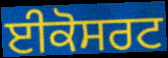
ਈਕੋਸਰਟ